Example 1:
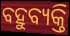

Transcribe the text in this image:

ବହୁବ୍ୟକ୍ତି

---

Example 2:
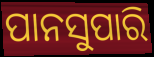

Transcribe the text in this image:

ପାନସୁପାରି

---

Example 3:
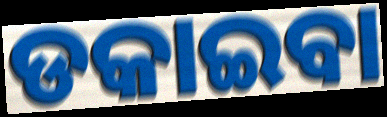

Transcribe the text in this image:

ଡକାଇବା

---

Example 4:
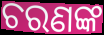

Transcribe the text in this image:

ଚରଣଙ୍କ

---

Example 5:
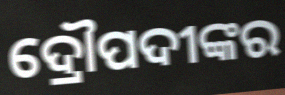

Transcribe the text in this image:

ଦ୍ରୌପଦୀଙ୍କର